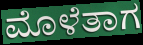
ಮೊಳೆತಾಗ